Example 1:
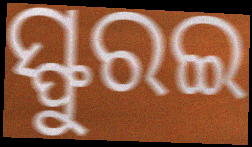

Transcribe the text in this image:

ସ୍ଫୁରଇ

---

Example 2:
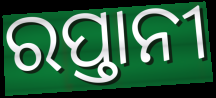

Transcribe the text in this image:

ରପ୍ତାନୀ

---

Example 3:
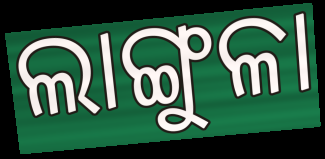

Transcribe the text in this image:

ଲାଙ୍ଗୁଳା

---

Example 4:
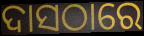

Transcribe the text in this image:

ଦାସଠାରେ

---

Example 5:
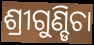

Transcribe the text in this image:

ଶ୍ରୀଗୁଣ୍ଡିଚା